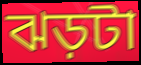
ঝড়টা